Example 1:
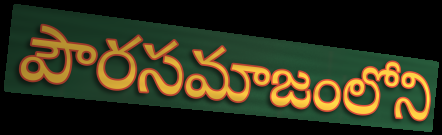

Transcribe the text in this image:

పౌరసమాజంలోని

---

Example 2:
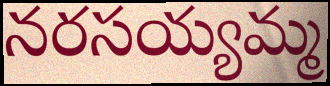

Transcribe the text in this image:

నరసయ్యమ్మ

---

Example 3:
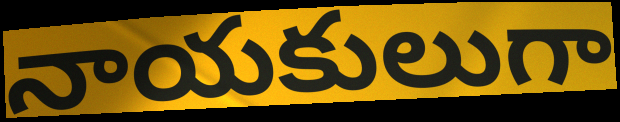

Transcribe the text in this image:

నాయకులుగా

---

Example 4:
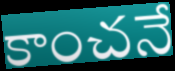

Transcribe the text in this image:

కాంచనే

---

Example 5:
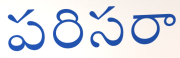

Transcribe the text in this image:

పరిసరా